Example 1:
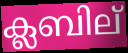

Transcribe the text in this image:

ക്ലബില്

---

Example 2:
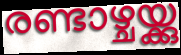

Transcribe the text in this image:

രണ്ടാഴ്ചയ്ക്കു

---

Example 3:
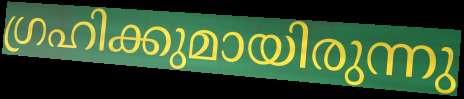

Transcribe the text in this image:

ഗ്രഹിക്കുമായിരുന്നു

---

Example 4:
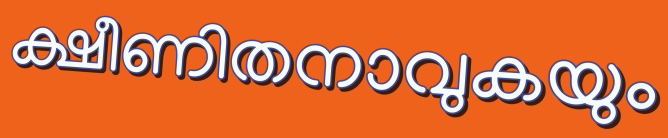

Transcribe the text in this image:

ക്ഷീണിതനാവുകയും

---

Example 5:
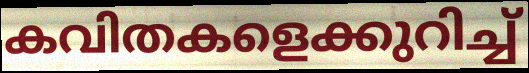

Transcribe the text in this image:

കവിതകളെക്കുറിച്ച്